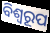
ବିଶ୍ବରୂପ